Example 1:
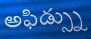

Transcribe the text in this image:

అఫిడ్స్ను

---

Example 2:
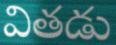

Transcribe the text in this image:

వితడు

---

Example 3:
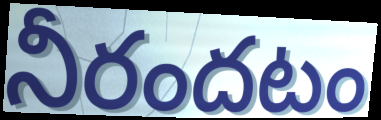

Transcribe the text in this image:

నీరందటం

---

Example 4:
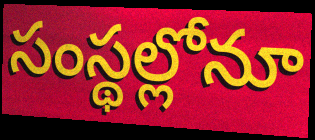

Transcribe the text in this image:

సంస్థల్లోనూ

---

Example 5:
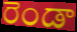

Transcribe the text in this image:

రెండా